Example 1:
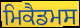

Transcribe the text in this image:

ਮਿਕੈਡਮਸ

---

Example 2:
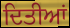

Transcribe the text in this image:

ਦਿਤੀਆਂ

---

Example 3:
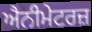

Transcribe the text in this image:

ਐਨੀਮੇਟਰਜ਼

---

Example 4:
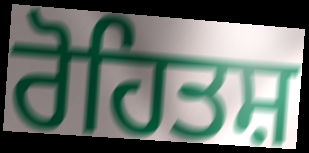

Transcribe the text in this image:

ਰੋਹਿਤਸ਼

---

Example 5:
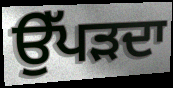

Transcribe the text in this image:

ਉੱਪੜਦਾ